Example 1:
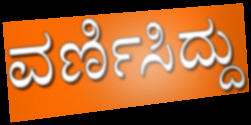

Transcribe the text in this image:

ವರ್ಣಿಸಿದ್ದು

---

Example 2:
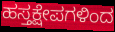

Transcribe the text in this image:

ಹಸ್ತಕ್ಷೇಪಗಳಿಂದ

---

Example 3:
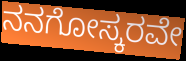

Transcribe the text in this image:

ನನಗೋಸ್ಕರವೇ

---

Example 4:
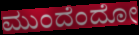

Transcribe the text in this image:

ಮುಂದೆಂದೋ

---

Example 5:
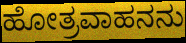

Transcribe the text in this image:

ಹೋತ್ರವಾಹನನು